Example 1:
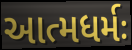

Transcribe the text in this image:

આત્મધર્મઃ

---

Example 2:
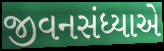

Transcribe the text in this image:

જીવનસંધ્યાએ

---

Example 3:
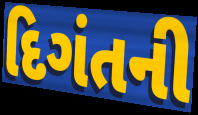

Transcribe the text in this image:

દિગંતની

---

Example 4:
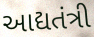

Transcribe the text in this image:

આદ્યતંત્રી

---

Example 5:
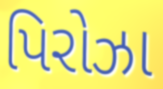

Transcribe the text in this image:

પિરોઝા